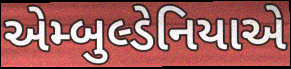
એમ્બુલ્ડેનિયાએ